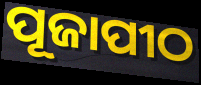
ପୂଜାପୀଠ